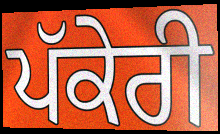
ਪੱਕੇਰੀ